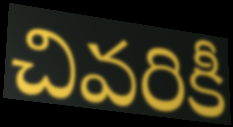
చివరికీ